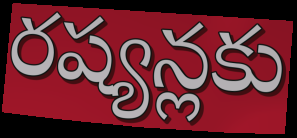
రష్యన్లకు